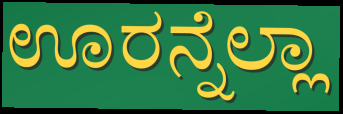
ಊರನ್ನೆಲ್ಲಾ